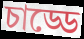
চাড্ডে